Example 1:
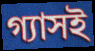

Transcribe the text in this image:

গ্যাসই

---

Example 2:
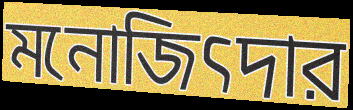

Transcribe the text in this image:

মনোজিৎদার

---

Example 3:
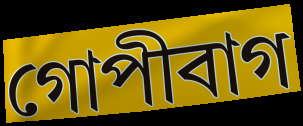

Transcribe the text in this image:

গোপীবাগ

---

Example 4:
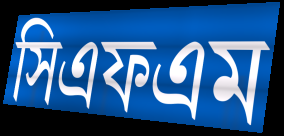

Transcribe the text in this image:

সিএফএম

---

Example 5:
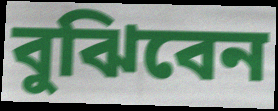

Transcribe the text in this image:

বুঝিবেন